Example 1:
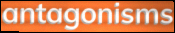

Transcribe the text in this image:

antagonisms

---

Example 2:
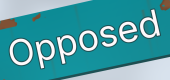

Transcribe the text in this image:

Opposed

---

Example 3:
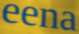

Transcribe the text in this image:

eena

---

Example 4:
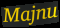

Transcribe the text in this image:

Majnu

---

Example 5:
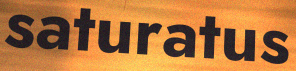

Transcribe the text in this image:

saturatus